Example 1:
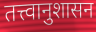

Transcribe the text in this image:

तत्त्वानुशासन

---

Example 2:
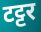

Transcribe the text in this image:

टट्टर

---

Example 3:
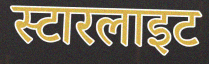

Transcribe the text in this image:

स्टारलाइट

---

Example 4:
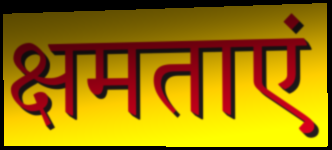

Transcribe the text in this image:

क्षमताएं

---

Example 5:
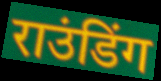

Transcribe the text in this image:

राउंडिंग